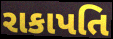
રાકાપતિ